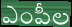
ఎంపీల